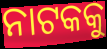
ନାଟକକୁ